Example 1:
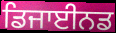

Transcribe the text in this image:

ਡਿਜਾਈਨਡ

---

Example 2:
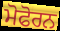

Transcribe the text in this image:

ਮੋਫੋਰਨ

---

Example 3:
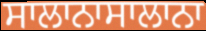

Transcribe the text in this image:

ਸਾਲਾਨਾਸਾਲਾਨਾ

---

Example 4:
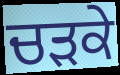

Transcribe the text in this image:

ਚੜਕੇ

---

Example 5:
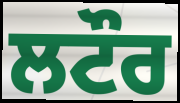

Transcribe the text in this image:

ਲਟੌਰ